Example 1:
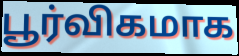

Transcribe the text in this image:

பூர்விகமாக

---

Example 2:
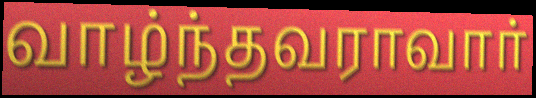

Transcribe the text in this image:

வாழ்ந்தவராவார்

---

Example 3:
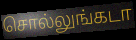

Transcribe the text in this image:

சொல்லுங்கடா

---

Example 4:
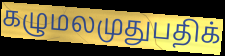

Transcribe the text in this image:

கழுமலமுதுபதிக்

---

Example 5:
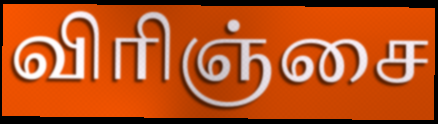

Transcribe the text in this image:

விரிஞ்சை